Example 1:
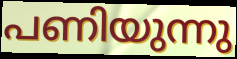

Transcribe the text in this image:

പണിയുന്നു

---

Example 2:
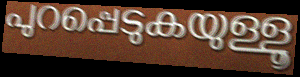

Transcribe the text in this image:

പുറപ്പെടുകയുള്ളൂ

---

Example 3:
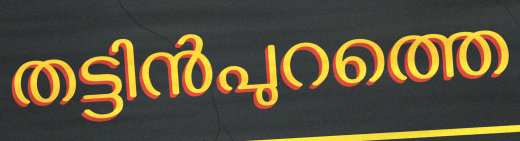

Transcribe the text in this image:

തട്ടിൻപുറത്തെ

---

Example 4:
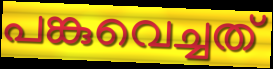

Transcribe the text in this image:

പങ്കുവെച്ചത്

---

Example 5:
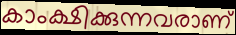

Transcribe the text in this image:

കാംക്ഷിക്കുന്നവരാണ്